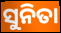
ସୁନିତା